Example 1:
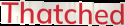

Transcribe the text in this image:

Thatched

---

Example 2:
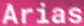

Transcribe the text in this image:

Arias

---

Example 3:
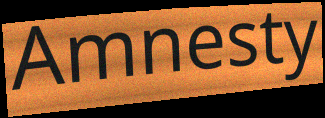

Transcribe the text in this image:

Amnesty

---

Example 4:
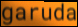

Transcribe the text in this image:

garuda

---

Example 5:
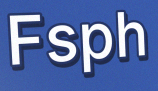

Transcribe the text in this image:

Fsph